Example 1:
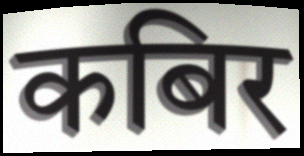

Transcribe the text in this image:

कबिर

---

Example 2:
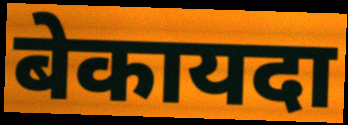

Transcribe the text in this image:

बेकायदा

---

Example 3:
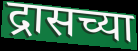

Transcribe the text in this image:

द्रासच्या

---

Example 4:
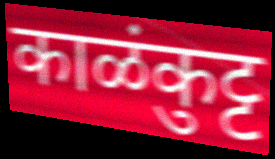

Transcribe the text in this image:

काळंकुट्ट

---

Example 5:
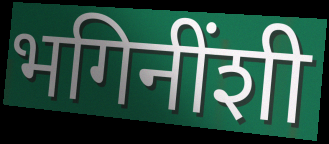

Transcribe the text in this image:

भगिनींशी